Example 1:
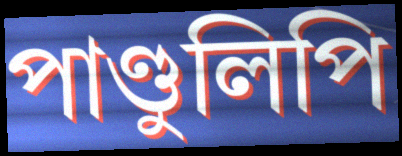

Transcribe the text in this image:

পাণ্ডুলিপি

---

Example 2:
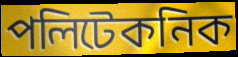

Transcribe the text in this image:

পলিটেকনিক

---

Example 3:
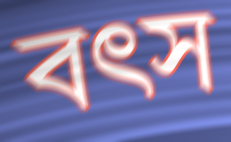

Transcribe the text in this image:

বৎস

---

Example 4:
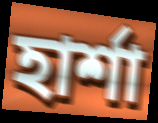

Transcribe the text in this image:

হার্শা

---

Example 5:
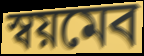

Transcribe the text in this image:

স্বয়মেব